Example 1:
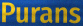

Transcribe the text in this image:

Purans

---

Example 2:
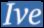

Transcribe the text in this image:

Ive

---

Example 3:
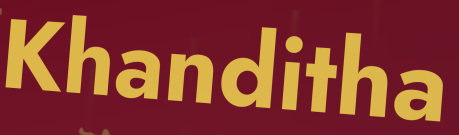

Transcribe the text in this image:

Khanditha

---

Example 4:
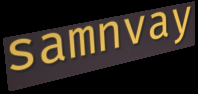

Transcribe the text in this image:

samnvay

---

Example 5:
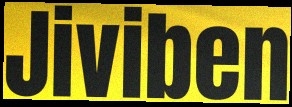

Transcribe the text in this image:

Jiviben